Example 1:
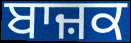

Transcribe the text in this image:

ਬਾਜ਼ਕ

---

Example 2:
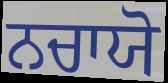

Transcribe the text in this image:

ਨਚਾਯੋ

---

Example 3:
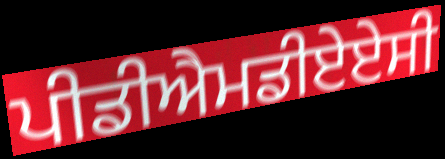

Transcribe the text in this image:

ਪੀਡੀਐਮਡੀਏਏਸੀ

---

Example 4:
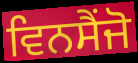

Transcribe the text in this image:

ਵਿਨਸੈਂਜੋ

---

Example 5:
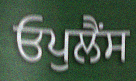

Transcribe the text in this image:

ਓਪੁਲੈਂਸ